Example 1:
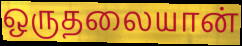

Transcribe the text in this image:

ஒருதலையான்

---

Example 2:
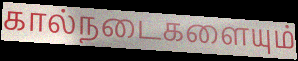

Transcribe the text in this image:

கால்நடைகளையும்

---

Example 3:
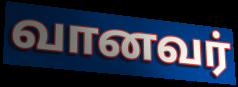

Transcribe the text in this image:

வானவர்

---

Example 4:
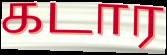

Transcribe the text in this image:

கடார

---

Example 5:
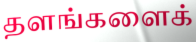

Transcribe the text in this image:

தளங்களைக்